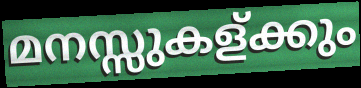
മനസ്സുകള്ക്കും